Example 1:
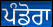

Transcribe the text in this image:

ਪੰਡੋਰਾ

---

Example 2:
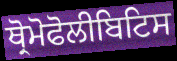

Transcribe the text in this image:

ਥ੍ਰੋਮੋਫੋਲੀਬਿਟਿਸ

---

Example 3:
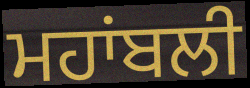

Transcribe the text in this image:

ਮਹਾਂਬਲੀ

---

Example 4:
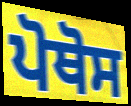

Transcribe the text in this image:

ਪੋਥੋਸ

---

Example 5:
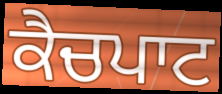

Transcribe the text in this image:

ਕੈਚਪਾਟ